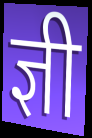
ज्ञी